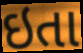
ઇતા